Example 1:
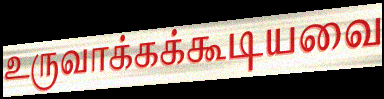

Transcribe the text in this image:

உருவாக்கக்கூடியவை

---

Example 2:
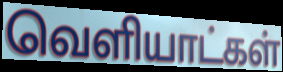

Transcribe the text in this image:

வெளியாட்கள்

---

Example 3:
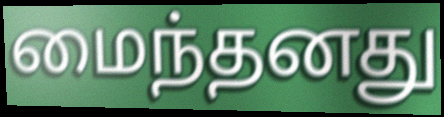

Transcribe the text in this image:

மைந்தனது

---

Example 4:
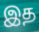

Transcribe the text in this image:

இத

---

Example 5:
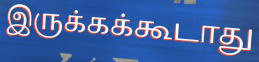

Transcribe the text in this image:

இருக்கக்கூடாது